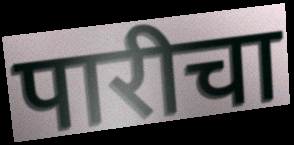
पारीचा